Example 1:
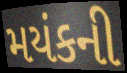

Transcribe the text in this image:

મયંકની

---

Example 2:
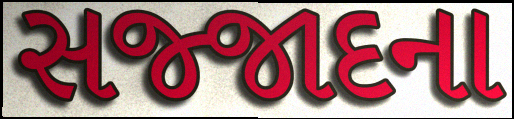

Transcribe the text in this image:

સજ્જાદના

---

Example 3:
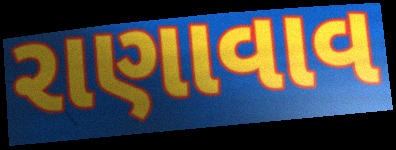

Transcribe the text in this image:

રાણાવાવ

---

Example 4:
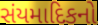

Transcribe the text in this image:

સંયમાદિકનો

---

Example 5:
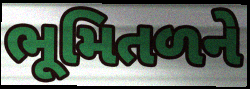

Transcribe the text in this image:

ભૂમિતળને